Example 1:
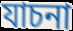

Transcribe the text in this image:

যাচনা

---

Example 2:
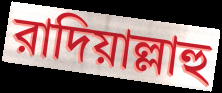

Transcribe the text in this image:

রাদিয়াল্লাহু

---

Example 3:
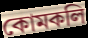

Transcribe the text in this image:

কোমকলি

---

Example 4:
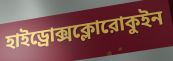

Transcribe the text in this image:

হাইড্রোক্সক্লোরোকুইন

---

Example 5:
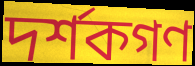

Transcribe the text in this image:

দর্শকগণ